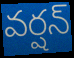
వర్షన్